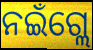
ନଇଁଗ୍ଲେ